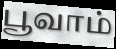
பூவாம்